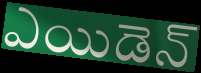
ఎయిడెన్